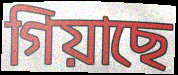
গিয়াছে